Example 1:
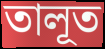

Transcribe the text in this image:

তালূত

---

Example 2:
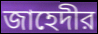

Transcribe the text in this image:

জাহেদীর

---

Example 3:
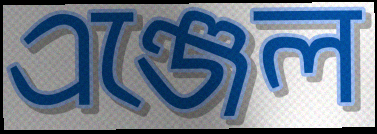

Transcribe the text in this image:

এঞ্জেল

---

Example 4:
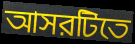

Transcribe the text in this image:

আসরটিতে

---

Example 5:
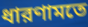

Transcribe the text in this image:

ধারণামতে